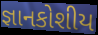
જ્ઞાનકોશીય